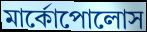
মার্কোপোলোস